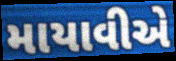
માયાવીએ